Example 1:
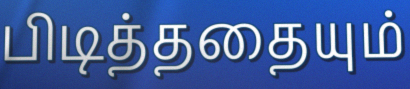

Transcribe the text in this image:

பிடித்ததையும்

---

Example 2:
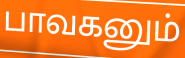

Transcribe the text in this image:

பாவகனும்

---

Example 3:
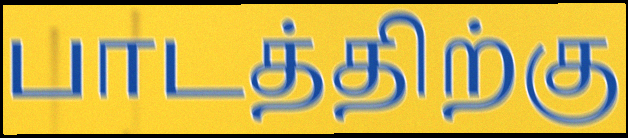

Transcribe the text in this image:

பாடத்திற்கு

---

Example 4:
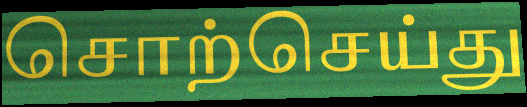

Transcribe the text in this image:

சொற்செய்து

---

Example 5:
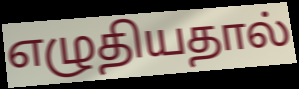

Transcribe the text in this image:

எழுதியதால்